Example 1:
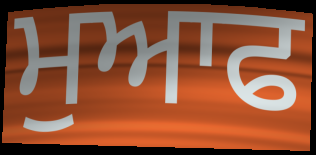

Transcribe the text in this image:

ਮੁਆਫ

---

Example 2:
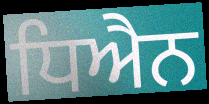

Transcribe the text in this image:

ਧਿਐਨ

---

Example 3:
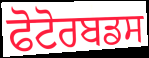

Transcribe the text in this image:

ਫੋਟੋਰਬਡਸ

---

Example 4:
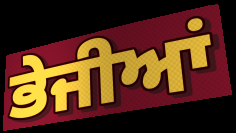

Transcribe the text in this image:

ਭੇਜੀਆਂ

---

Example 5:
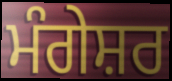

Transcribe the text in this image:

ਮੰਗੇਸ਼ਰ